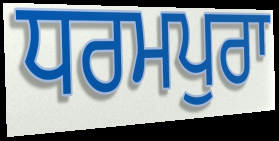
ਧਰਮਪੁਰਾ